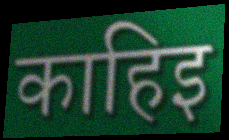
काहिइ